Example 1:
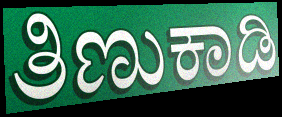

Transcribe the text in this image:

ತಿಣುಕಾಡಿ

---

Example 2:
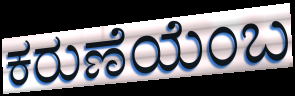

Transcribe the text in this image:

ಕರುಣೆಯೆಂಬ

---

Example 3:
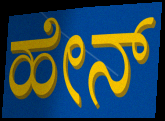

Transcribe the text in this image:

ಹೇನ್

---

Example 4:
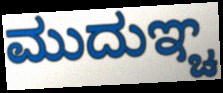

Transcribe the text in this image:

ಮುದುಞ್ಚ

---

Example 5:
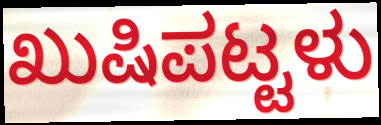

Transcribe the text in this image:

ಖುಷಿಪಟ್ಟಳು